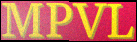
MPVL